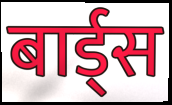
बार्ड्स